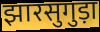
झारसुगुड़ा